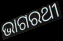
ଭାଗରଥୀ